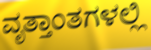
ವೃತ್ತಾಂತಗಳಲ್ಲಿ